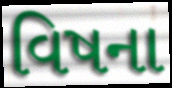
વિષના